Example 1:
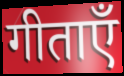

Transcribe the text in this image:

गीताएँ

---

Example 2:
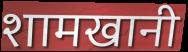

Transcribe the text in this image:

शामखानी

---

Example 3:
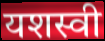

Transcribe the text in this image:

यशस्वी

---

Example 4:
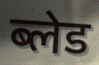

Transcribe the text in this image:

ब्लेड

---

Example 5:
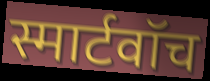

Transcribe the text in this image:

स्मार्टवॉच